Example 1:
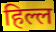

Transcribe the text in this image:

हिल्ल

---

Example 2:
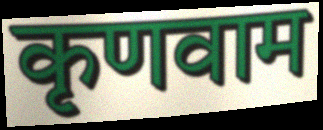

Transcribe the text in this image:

कृणवाम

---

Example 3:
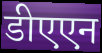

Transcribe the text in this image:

डीएएन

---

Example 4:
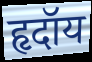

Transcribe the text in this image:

हृदॉय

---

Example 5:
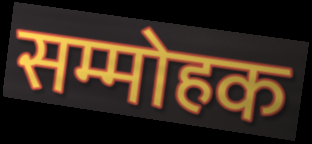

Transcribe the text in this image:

सम्मोहक